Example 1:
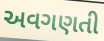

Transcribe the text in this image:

અવગણતી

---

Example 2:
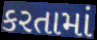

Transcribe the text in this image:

કરતામાં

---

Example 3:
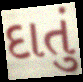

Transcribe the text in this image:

દાતું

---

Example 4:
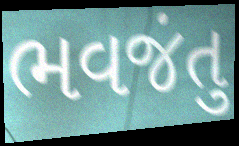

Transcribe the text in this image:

ભવજંતુ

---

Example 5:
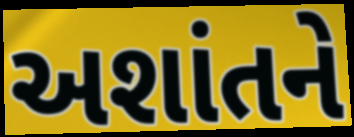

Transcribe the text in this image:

અશાંતને